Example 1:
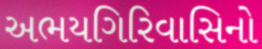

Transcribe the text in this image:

અભયગિરિવાસિનો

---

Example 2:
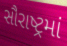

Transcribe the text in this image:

સૌરાષ્ટ્રમાં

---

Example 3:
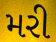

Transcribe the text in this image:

મરી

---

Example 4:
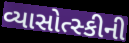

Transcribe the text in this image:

વ્યાસોત્સ્કીની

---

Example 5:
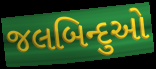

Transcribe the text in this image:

જલબિન્દુઓ